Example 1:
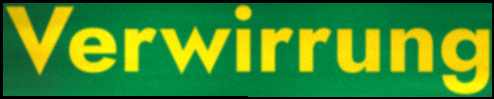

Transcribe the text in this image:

Verwirrung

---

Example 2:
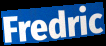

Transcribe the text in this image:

Fredric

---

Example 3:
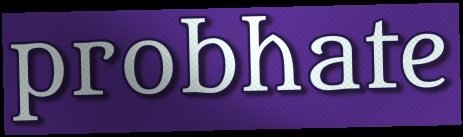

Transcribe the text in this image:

probhate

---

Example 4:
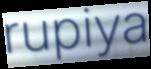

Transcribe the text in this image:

rupiya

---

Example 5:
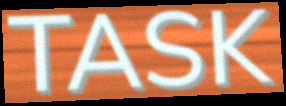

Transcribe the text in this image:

TASK